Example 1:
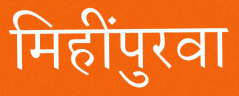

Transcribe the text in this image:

मिहींपुरवा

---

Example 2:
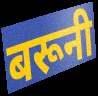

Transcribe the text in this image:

बरूनी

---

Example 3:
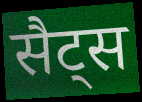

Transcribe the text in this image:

सैट्स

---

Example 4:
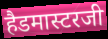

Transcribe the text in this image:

हैडमास्टरजी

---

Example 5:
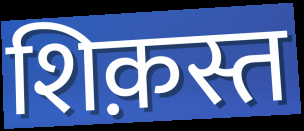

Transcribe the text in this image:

शिक़स्त